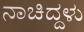
ನಾಚಿದ್ದಳು